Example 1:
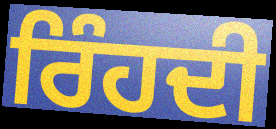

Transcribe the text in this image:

ਰਿੰਹਦੀ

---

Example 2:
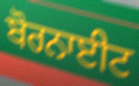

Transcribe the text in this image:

ਬੋਰਨਾਈਟ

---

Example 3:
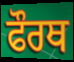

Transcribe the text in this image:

ਫੌਰਥ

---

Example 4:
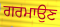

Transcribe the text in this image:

ਗਰਮਾਉਣ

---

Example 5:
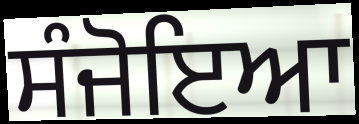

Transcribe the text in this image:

ਸੰਜੋਇਆ